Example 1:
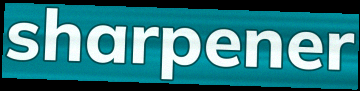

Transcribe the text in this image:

sharpener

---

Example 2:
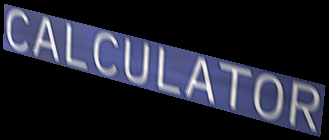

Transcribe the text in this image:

CALCULATOR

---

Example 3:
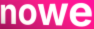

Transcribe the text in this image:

nowe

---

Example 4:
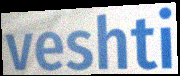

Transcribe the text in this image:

veshti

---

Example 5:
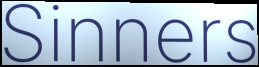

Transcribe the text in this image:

Sinners